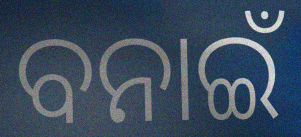
ବନାଇଁ